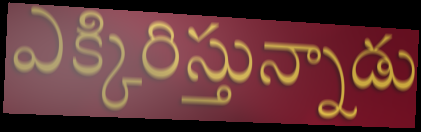
ఎక్కిరిస్తున్నాడు